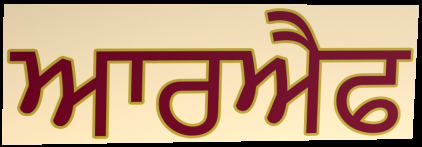
ਆਰਐਫ